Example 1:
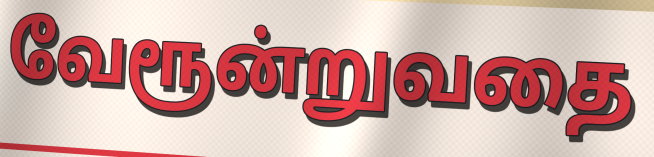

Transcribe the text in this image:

வேரூன்றுவதை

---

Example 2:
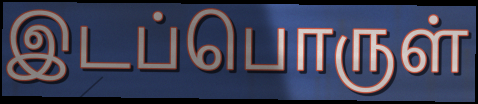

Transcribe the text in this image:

இடப்பொருள்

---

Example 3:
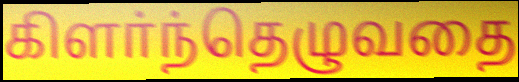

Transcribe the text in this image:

கிளர்ந்தெழுவதை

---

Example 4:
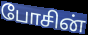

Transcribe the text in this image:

போசின்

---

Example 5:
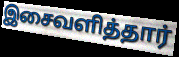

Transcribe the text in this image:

இசைவளித்தார்